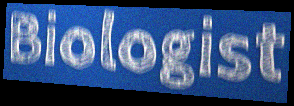
Biologist